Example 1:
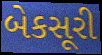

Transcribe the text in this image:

બેકસૂરી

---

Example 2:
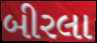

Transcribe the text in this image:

બીરલા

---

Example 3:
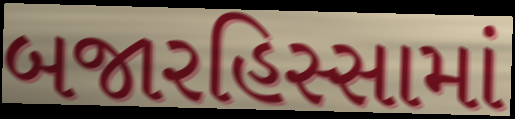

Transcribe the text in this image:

બજારહિસ્સામાં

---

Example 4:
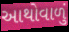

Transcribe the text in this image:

આથોવાળું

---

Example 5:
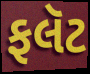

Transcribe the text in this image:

ફલૅટ